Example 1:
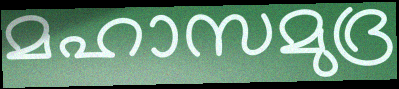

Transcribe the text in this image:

മഹാസമുദ്ര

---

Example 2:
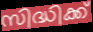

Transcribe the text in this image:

സിദ്ധിക്ക്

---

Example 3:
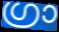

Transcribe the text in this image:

ഗ്രാ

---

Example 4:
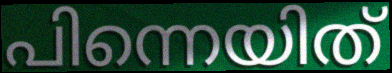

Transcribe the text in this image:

പിന്നെയിത്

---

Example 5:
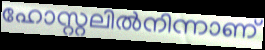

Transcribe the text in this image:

ഹോസ്റ്റലിൽനിന്നാണ്